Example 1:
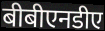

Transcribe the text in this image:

बीबीएनडीए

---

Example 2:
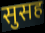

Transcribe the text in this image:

सुसह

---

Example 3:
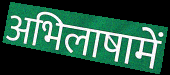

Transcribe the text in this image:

अभिलाषामें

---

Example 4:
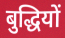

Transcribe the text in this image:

बुद्धियों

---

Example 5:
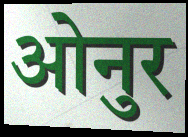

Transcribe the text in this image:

ओनुर